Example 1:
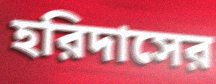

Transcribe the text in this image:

হরিদাসের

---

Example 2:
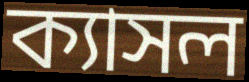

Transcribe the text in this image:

ক্যাসল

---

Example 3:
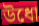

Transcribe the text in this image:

উধো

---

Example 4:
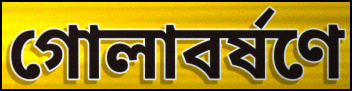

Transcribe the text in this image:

গোলাবর্ষণে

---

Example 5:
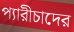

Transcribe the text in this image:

প্যারীচাদের